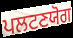
ਪਲਟਣਯੋਗ